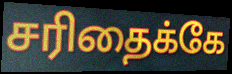
சரிதைக்கே